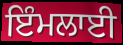
ਇੰਮਲਾਈ